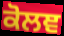
ਕੋਲਞ